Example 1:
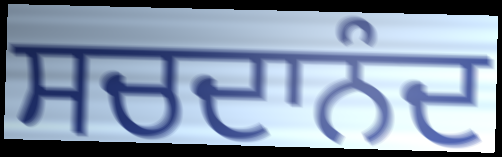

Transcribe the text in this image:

ਸਚਦਾਨੰਦ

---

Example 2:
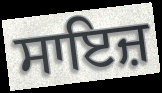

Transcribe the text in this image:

ਸਾਇਜ਼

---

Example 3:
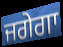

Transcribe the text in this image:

ਜਗੇਗਾ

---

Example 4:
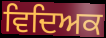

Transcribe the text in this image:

ਵਿਦਿਅਕ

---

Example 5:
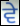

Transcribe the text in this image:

ਵੇ